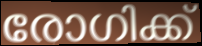
രോഗിക്ക്